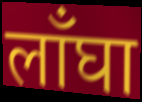
लाँघा